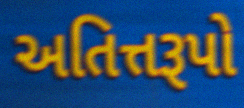
અતિત્તરૂપો